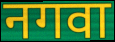
नगवा